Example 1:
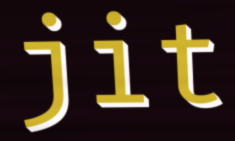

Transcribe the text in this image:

jit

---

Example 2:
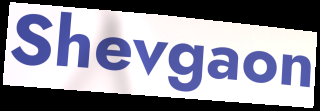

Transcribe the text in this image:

Shevgaon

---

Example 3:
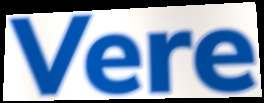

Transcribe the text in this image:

Vere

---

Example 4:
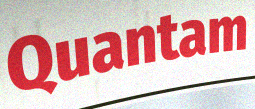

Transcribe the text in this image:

Quantam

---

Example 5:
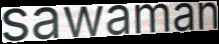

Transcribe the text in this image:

sawaman